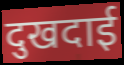
दुखदाई